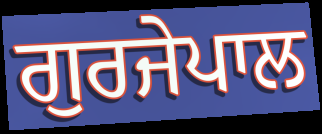
ਗੁਰਜੇਪਾਲ